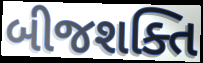
બીજશક્તિ